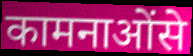
कामनाओंसे